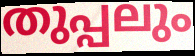
തുപ്പലും